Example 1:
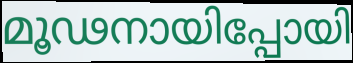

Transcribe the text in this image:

മൂഢനായിപ്പോയി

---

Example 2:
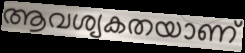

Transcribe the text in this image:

ആവശ്യകതയാണ്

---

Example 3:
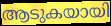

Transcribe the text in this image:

ആടുകയായി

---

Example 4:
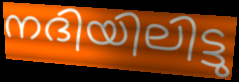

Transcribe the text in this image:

നദിയിലിട്ടു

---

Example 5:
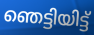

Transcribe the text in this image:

ഞെട്ടിയിട്ട്